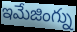
ఇమేజింగ్ను